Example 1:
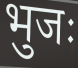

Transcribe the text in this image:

भुजः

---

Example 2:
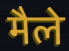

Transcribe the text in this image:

मैले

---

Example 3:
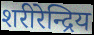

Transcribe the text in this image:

शरीरेन्द्रिय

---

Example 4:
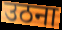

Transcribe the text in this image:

उठना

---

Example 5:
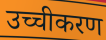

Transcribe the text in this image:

उच्चीकरण